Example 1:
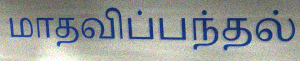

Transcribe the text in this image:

மாதவிப்பந்தல்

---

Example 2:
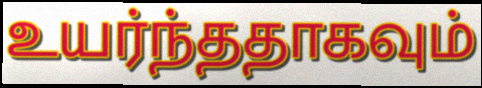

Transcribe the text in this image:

உயர்ந்ததாகவும்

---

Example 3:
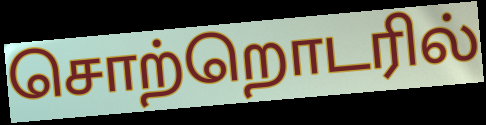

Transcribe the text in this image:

சொற்றொடரில்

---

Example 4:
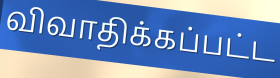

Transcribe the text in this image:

விவாதிக்கப்பட்ட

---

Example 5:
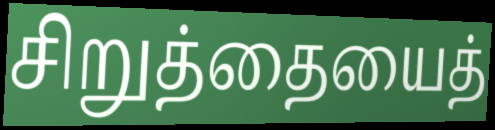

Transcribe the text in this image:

சிறுத்தையைத்